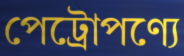
পেট্রোপণ্যে